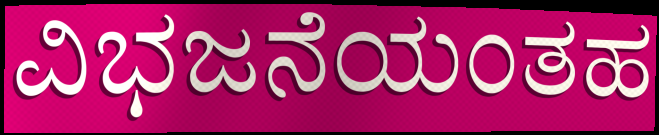
ವಿಭಜನೆಯಂತಹ